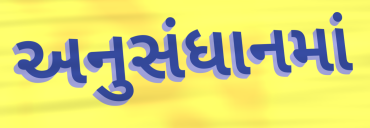
અનુસંધાનમાં